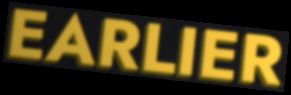
EARLIER